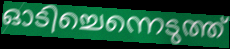
ഓടിച്ചെന്നെടുത്ത്